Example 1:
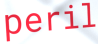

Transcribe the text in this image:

peril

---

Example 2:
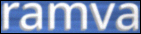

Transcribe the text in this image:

ramva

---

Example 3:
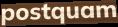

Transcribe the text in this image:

postquam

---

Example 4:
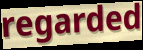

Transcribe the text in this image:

regarded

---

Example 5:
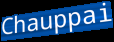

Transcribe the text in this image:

Chauppai